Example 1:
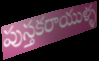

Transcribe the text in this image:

పుస్తకరాయుళ్ళ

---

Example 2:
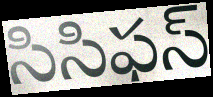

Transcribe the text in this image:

సిసిఫస్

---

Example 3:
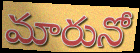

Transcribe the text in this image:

మారునో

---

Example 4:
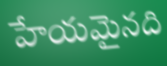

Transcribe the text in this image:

హేయమైనది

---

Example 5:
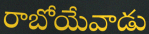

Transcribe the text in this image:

రాబోయేవాడు